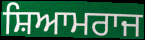
ਸ਼ਿਆਮਰਾਜ